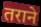
तराने